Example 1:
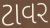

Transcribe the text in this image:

ટાવર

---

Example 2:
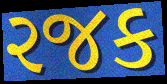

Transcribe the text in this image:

રજક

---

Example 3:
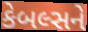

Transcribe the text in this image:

કેબલ્સને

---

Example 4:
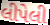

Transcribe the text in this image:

લીપેલી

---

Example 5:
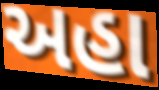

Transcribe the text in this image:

અહા